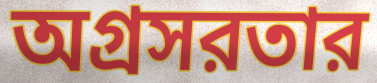
অগ্রসরতার